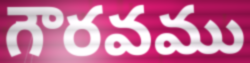
గౌరవము